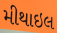
મીથાઇલ